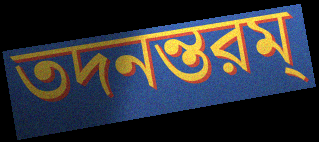
তদনন্তরম্